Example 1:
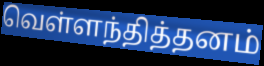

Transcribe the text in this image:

வெள்ளந்தித்தனம்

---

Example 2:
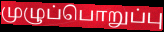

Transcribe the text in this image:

முழுப்பொறுப்பு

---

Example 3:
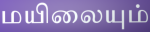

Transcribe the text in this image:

மயிலையும்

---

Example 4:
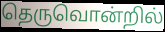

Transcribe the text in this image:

தெருவொன்றில்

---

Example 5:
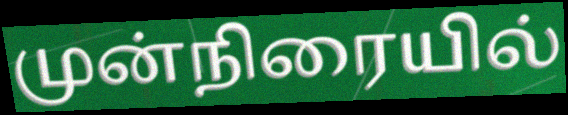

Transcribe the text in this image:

முன்நிரையில்